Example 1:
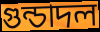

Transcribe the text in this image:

গুন্ডাদল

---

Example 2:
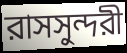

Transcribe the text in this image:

রাসসুন্দরী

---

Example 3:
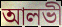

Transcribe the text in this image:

আলভী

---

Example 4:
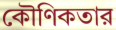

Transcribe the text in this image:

কৌণিকতার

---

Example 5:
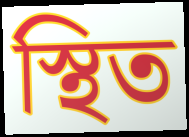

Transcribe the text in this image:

স্থিত